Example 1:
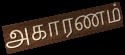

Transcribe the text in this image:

அகாரணம்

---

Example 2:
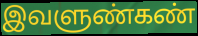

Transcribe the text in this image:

இவளுண்கண்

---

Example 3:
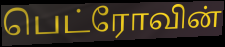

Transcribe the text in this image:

பெட்ரோவின்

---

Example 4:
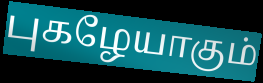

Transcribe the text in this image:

புகழேயாகும்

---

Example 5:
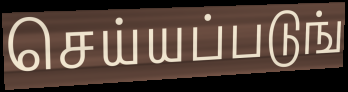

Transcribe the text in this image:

செய்யப்படுங்